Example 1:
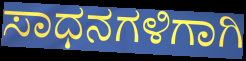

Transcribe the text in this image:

ಸಾಧನಗಳಿಗಾಗಿ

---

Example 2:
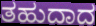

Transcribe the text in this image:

ತಹುದಾದ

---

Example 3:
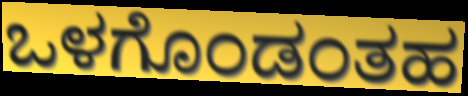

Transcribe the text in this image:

ಒಳಗೊಂಡಂತಹ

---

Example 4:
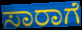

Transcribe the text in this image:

ಸಾರಾಗೆ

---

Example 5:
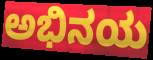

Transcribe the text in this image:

ಅಭಿನಯ